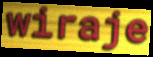
wiraje